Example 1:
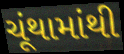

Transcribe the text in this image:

ચૂંથામાંથી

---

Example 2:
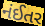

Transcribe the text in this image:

નંઈતર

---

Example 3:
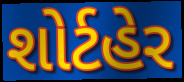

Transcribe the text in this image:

શોર્ટહેર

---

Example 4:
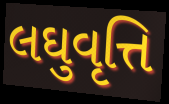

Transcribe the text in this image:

લઘુવૃત્તિ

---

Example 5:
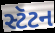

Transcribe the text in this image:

સ્ટૅટન